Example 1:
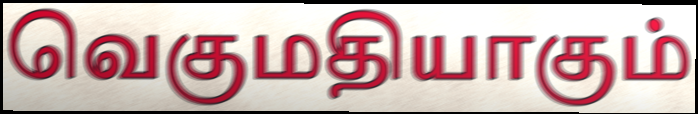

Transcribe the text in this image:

வெகுமதியாகும்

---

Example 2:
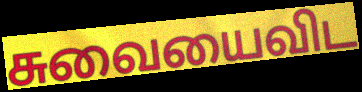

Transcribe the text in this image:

சுவையைவிட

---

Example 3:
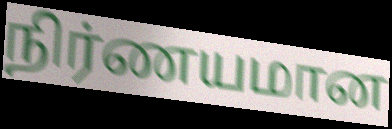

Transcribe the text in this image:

நிர்ணயமான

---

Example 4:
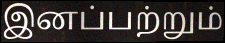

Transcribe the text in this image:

இனப்பற்றும்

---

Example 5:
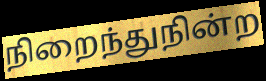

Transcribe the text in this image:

நிறைந்துநின்ற